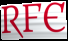
RFE